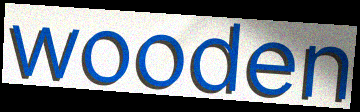
wooden